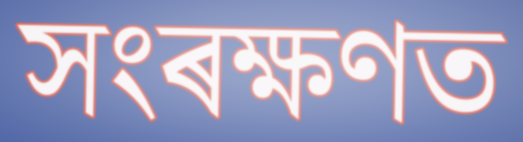
সংৰক্ষণত